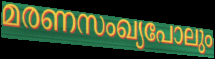
മരണസംഖ്യപോലും